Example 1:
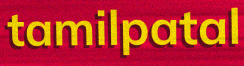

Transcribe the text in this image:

tamilpatal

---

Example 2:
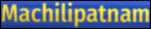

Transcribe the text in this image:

Machilipatnam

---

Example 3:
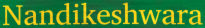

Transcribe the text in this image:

Nandikeshwara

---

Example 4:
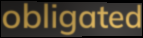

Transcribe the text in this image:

obligated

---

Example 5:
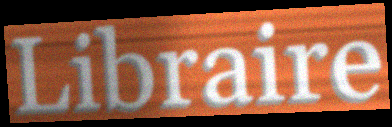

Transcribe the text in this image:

Libraire